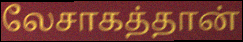
லேசாகத்தான்